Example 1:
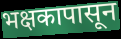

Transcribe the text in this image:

भक्षकापासून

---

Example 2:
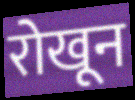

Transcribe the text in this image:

रोखून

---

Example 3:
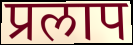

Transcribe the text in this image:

प्रलाप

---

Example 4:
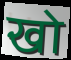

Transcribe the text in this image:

खो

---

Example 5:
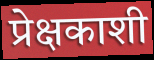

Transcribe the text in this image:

प्रेक्षकाशी